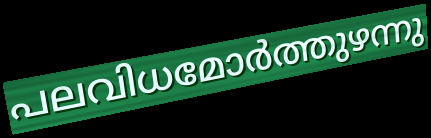
പലവിധമോർത്തുഴന്നു